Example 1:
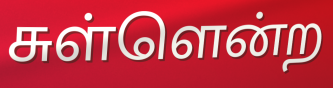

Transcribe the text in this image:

சுள்ளென்ற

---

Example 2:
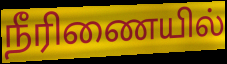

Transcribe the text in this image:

நீரிணையில்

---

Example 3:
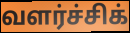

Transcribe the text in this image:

வளர்ச்சிக்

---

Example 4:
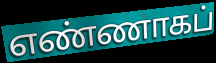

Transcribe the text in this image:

எண்ணாகப்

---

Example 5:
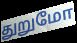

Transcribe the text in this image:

துறுமோ